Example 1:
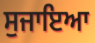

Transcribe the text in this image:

ਸੁਜਾਇਆ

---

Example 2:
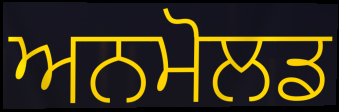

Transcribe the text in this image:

ਅਨਮੋਲਡ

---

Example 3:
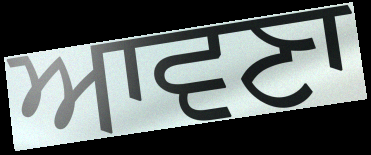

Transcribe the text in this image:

ਆਵਣਾ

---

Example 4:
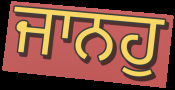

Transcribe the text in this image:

ਜਾਨਹੁ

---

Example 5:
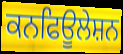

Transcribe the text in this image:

ਕਨਫਿਊਲੇਸ਼ਨ